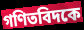
গণিতবিদকে